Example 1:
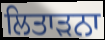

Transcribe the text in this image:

ਲਿਤਾੜਨਾ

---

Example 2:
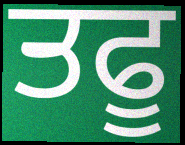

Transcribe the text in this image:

ਤਫੂ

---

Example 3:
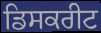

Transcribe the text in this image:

ਡਿਸਕਰੀਟ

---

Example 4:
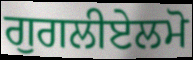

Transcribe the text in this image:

ਗੁਗਲੀਏਲਮੋ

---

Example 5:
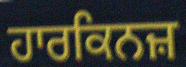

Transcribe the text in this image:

ਹਾਰਕਿਨਜ਼